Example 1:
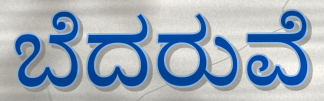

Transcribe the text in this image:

ಬೆದರುವೆ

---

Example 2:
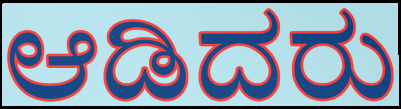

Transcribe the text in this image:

ಆಡಿದರು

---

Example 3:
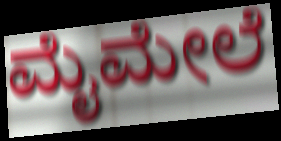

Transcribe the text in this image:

ಮೈಮೇಲೆ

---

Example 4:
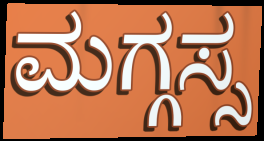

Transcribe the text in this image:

ಮಗ್ಗಸ್ಸ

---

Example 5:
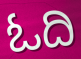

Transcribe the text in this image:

ಓದಿ